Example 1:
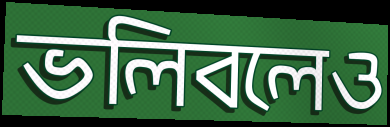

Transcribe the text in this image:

ভলিবলেও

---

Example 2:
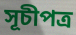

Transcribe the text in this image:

সূচীপত্র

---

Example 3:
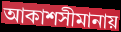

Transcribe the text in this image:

আকাশসীমানায়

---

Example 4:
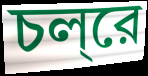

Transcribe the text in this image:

চল্‌রে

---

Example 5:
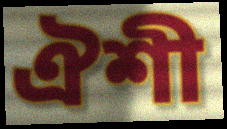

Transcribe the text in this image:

ঐশী